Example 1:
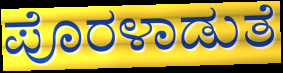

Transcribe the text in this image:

ಪೊರಳಾಡುತೆ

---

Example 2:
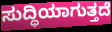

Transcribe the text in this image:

ಸುದ್ಧಿಯಾಗುತ್ತದೆ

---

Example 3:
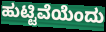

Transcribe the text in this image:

ಹುಟ್ಟಿವೆಯೆಂದು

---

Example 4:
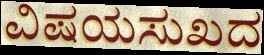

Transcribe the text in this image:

ವಿಷಯಸುಖದ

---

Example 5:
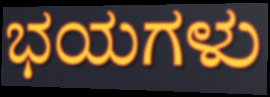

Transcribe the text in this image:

ಭಯಗಳು